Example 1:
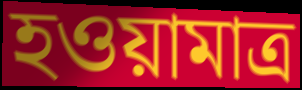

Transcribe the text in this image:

হওয়ামাত্র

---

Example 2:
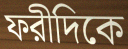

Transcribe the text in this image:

ফরীদিকে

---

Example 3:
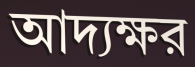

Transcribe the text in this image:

আদ্যক্ষর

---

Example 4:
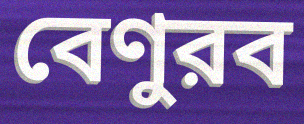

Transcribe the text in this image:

বেণুরব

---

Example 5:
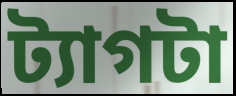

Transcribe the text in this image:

ট্যাগটা